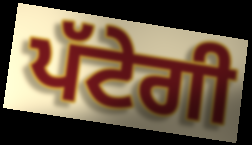
ਪੱਟੇਗੀ